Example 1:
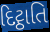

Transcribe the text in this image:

દિટ્ઠાતિ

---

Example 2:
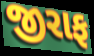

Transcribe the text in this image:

જીરાફ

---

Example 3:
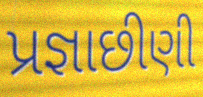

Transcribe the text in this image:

પ્રજ્ઞાછીણી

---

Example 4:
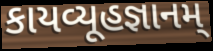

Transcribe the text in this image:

કાયવ્યૂહજ્ઞાનમ્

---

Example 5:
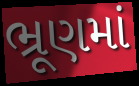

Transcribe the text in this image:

ભ્રૂણમાં